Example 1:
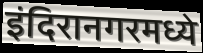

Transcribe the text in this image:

इंदिरानगरमध्ये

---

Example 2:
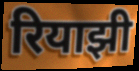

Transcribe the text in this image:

रियाझी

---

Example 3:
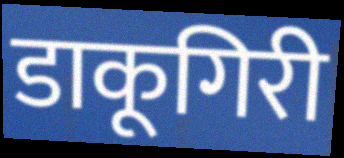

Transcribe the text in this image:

डाकूगिरी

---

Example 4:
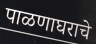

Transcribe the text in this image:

पाळणाघराचे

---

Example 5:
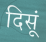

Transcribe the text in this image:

दिसूं